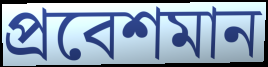
প্রবেশমান